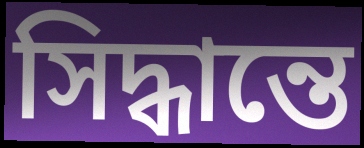
সিদ্ধান্তে